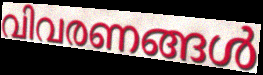
വിവരണങ്ങൾ